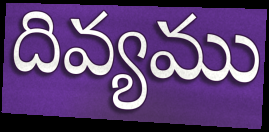
దివ్యము